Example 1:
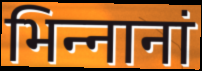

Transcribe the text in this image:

भिन्नानां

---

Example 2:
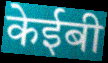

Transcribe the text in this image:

केईबी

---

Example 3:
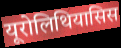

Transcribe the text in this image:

यूरोलिथियासिस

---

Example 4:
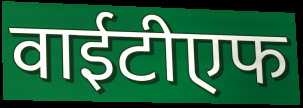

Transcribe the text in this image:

वाईटीएफ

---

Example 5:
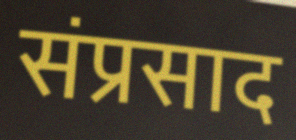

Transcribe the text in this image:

संप्रसाद